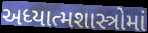
અધ્યાત્મશાસ્ત્રોમાં